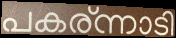
പകര്ന്നാടി